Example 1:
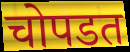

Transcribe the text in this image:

चोपडत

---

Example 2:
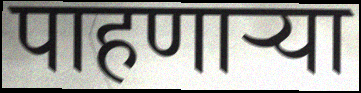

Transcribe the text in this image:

पाहणाऱ्या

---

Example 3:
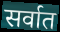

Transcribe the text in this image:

सर्वात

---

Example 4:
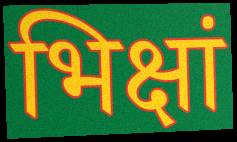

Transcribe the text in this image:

भिक्षां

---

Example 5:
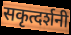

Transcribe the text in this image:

सकृत्दर्शनी